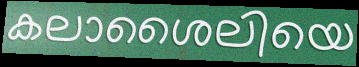
കലാശൈലിയെ